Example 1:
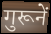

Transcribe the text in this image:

गुरूनें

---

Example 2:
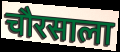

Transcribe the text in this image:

चौरसाला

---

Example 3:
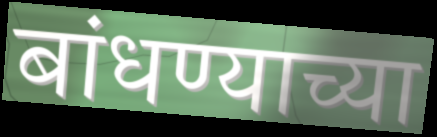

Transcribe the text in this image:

बांधण्याच्या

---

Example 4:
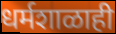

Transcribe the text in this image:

धर्मशाळाही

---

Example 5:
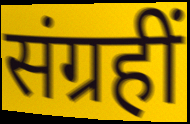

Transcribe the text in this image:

संग्रहीं